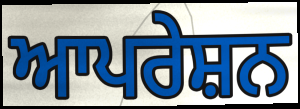
ਆਪਰੇਸ਼ਨ